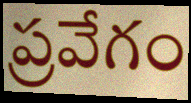
ప్రవేగం